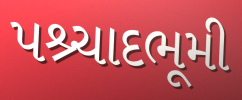
પશ્ર્ચાદભૂમી